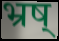
भ्रष्